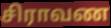
சிராவண